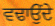
ਵਢਾਉਂਦੇ